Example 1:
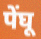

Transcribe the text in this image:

पेंघू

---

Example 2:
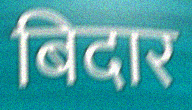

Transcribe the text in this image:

बिदार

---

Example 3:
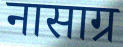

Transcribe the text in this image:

नासाग्र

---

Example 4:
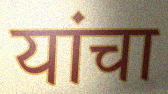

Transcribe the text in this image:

यांचा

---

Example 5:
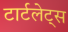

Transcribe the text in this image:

टार्टलेट्स